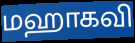
மஹாகவி